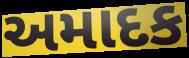
અમાદક